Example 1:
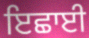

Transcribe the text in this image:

ਇਛਾਈ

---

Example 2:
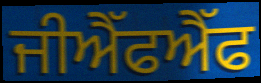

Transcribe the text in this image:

ਜੀਐੱਫਐੱਫ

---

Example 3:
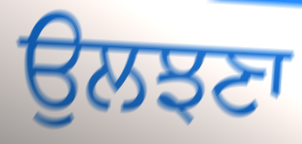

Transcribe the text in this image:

ਉਲਝਣਾ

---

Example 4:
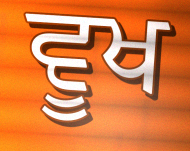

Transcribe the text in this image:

ਵੂਖ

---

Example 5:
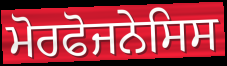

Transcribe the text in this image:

ਮੋਰਫੋਜਨੇਸਿਸ